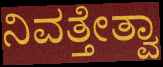
ನಿವತ್ತೇತ್ವಾ